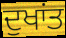
ਦੁਖਾਂਤ